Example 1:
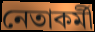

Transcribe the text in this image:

নেতাকর্মী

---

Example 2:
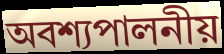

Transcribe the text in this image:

অবশ্যপালনীয়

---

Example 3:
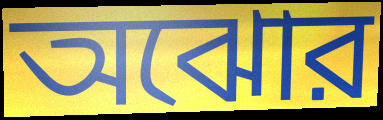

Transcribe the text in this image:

অঝোর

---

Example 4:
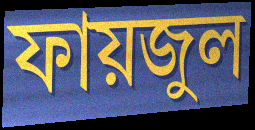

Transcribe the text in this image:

ফায়জুল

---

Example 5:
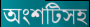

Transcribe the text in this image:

অংশটিসহ